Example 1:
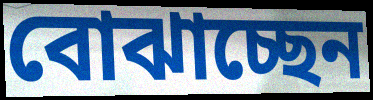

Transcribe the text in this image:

বোঝাচ্ছেন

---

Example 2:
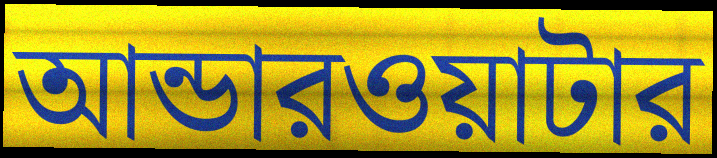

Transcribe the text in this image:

আন্ডারওয়াটার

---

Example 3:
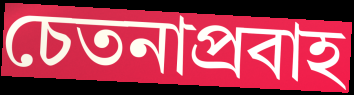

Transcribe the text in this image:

চেতনাপ্রবাহ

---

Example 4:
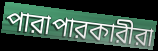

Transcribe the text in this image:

পারাপারকারীরা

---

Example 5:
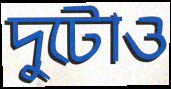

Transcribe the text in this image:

দুটোও